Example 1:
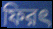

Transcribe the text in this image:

ফিরৎ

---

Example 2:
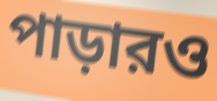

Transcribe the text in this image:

পাড়ারও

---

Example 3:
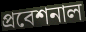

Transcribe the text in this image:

প্রবেশনাল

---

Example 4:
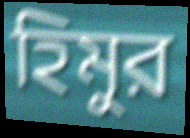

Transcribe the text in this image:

হিমুর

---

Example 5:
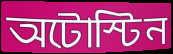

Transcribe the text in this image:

অটোস্টিন